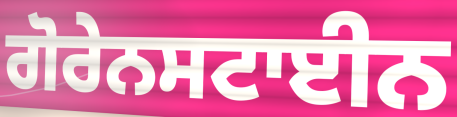
ਗੋਰੇਨਸਟਾਈਨ